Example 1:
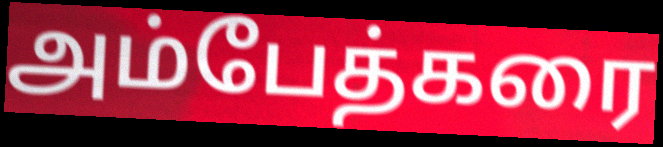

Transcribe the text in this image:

அம்பேத்கரை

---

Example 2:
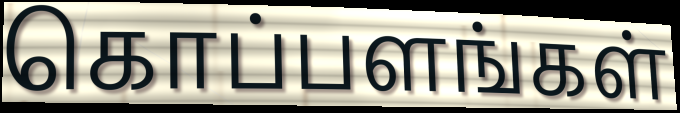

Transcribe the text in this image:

கொப்பளங்கள்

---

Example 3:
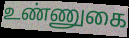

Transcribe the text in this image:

உண்ணுகை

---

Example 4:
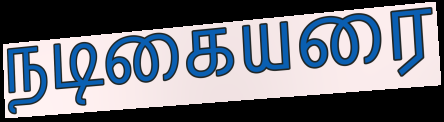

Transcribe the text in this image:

நடிகையரை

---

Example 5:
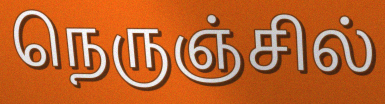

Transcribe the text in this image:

நெருஞ்சில்